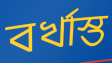
বৰ্খাস্ত